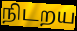
நிடறய